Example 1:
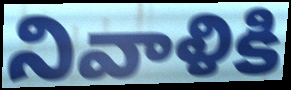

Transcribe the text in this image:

నివాళికి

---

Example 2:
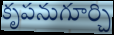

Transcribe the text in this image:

కృపనుగూర్చి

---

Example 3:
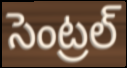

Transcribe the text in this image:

సెంట్రల్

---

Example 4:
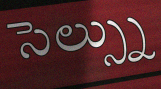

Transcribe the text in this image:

సెల్స్ను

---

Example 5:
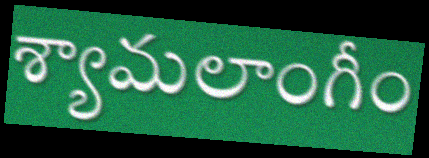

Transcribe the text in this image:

శ్యామలాంగీం